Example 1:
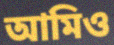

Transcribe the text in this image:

আমিও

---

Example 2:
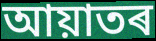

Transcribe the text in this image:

আয়াতৰ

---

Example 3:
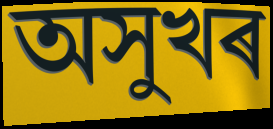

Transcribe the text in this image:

অসুখৰ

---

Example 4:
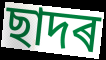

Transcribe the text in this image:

ছাদৰ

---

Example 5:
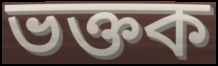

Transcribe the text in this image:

ভক্তক